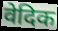
वेदिक